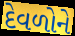
દેવળોને